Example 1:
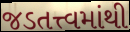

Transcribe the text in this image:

જડતત્ત્વમાંથી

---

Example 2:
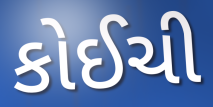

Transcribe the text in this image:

કોઈચી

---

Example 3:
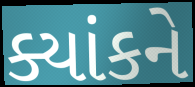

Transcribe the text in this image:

ક્યાંકને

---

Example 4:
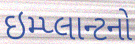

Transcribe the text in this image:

ઇમ્પ્લાન્ટનો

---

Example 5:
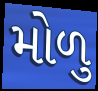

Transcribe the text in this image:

મોળુ